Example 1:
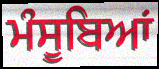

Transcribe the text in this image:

ਮੰਸੂਬਿਆਂ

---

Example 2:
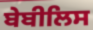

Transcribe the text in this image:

ਬੇਬੀਲਿਸ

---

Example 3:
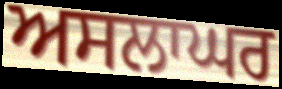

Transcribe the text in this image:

ਅਸਲਾਘਰ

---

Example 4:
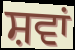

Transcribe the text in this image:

ਸ਼ਵਾਂ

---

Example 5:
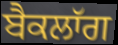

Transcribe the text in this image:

ਬੈਕਲਾੱਗ